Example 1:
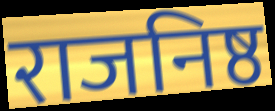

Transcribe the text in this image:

राजनिष्ठ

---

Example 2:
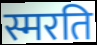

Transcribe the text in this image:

स्मरति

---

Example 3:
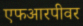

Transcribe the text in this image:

एफआरपीवर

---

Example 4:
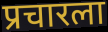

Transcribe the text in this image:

प्रचारला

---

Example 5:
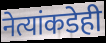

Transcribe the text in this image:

नेत्यांकडेही